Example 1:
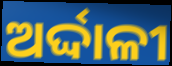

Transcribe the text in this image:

ଅର୍ଦ୍ଦାଳୀ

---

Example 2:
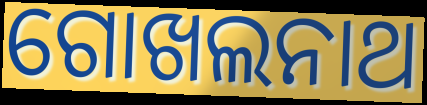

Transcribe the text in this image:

ଗୋଖଲନାଥ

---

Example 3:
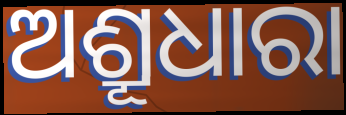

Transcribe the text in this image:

ଅଶ୍ରୂଧାରା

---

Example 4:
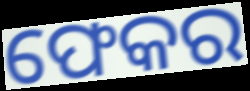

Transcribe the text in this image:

ଫେକର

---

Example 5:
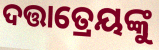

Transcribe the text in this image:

ଦତ୍ତାତ୍ରେୟଙ୍କୁ